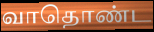
வாதொண்ட